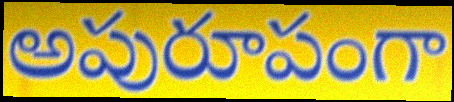
అపురూపంగా